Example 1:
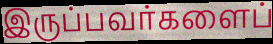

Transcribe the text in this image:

இருப்பவர்களைப்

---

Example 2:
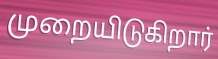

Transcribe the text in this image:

முறையிடுகிறார்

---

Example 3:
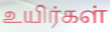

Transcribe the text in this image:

உயிர்கள்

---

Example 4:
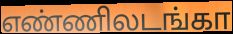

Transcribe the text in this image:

எண்ணிலடங்கா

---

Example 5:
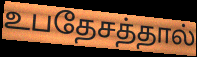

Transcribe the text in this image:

உபதேசத்தால்